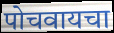
पोचवायचा